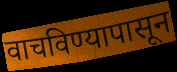
वाचविण्यापासून